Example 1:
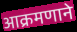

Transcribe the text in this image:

आक्रमणाने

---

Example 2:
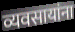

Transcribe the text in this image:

व्यवसायांना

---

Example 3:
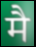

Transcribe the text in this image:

मै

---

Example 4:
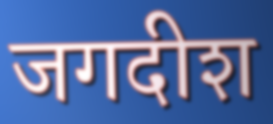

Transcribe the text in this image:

जगदीश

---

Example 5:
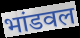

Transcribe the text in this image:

भांडवल